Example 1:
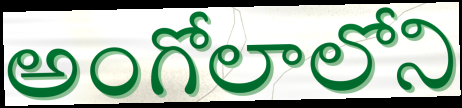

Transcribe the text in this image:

అంగోలాలోని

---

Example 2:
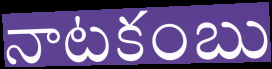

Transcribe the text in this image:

నాటకంబు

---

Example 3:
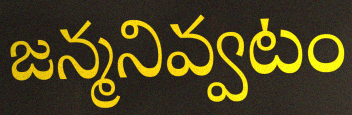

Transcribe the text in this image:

జన్మనివ్వటం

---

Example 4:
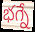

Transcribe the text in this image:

భగ్నే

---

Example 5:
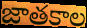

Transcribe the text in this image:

జాతకాల